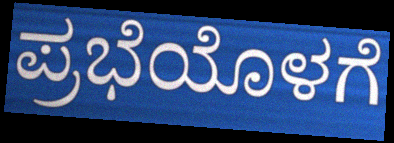
ಪ್ರಭೆಯೊಳಗೆ